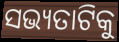
ସଭ୍ୟତାଟିକୁ